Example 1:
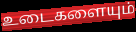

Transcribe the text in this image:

உடைகளையும்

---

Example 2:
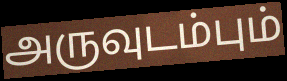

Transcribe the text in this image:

அருவுடம்பும்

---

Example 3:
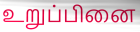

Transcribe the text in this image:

உறுப்பினை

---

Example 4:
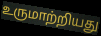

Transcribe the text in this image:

உருமாற்றியது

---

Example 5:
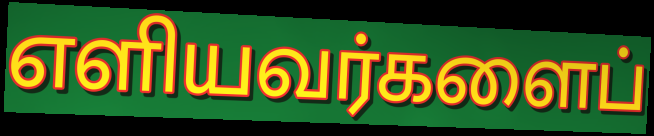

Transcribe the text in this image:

எளியவர்களைப்